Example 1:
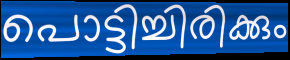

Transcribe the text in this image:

പൊട്ടിച്ചിരിക്കും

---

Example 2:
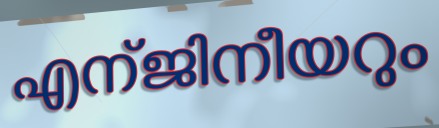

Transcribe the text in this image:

എന്ജിനീയറും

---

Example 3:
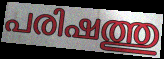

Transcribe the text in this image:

പരിഷത്തു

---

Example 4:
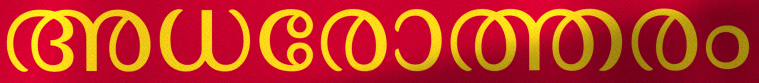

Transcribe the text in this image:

അധരോത്തരം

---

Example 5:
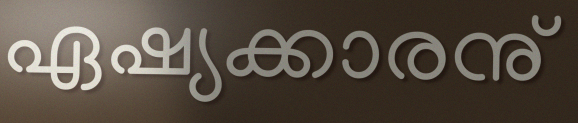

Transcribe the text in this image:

ഏഷ്യക്കാരനു്